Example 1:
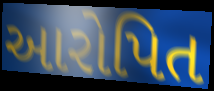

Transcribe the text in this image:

આરોપિત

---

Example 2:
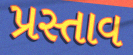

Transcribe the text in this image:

પ્રસ્તાવ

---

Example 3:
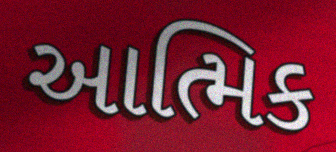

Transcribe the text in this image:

આત્મિક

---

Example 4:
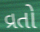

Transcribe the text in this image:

વ્રતો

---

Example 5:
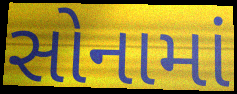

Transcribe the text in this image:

સોનામાં